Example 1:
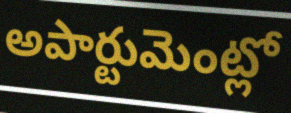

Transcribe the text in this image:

అపార్టుమెంట్లో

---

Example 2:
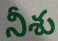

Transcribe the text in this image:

నీశు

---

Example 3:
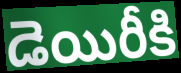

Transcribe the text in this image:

డెయిరీకి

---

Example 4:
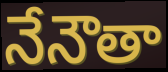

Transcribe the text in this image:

నేనౌతా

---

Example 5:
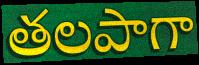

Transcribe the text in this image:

తలపాగా